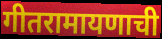
गीतरामायणाची